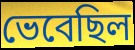
ভেবেছিল